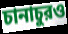
চানাচুরও